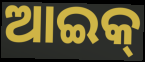
ଆଇକ୍